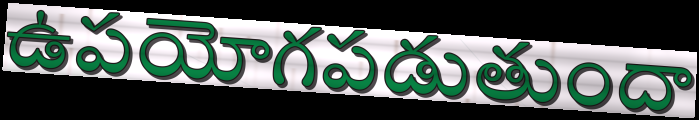
ఉపయోగపడుతుందా